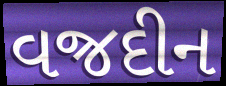
વજ્રદીન